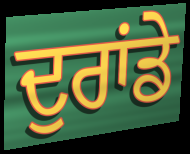
ਦੁਰਾਂਡੇ